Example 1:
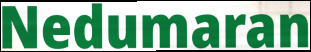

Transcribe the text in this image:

Nedumaran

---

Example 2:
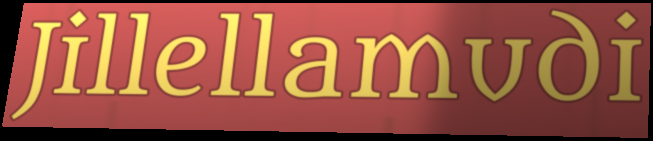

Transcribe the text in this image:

Jillellamudi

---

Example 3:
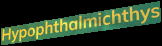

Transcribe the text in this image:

Hypophthalmichthys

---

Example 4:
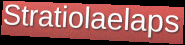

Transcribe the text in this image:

Stratiolaelaps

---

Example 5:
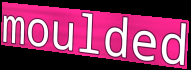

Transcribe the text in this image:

moulded